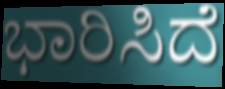
ಭಾರಿಸಿದೆ